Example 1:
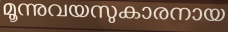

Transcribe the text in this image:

മൂന്നുവയസുകാരനായ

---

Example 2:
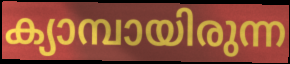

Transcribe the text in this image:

ക്യാമ്പായിരുന്ന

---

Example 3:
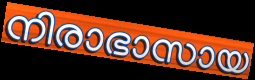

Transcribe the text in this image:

നിരാഭാസായ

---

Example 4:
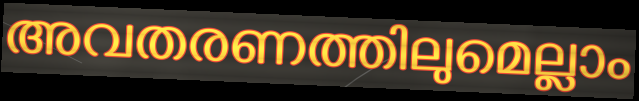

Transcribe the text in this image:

അവതരണത്തിലുമെല്ലാം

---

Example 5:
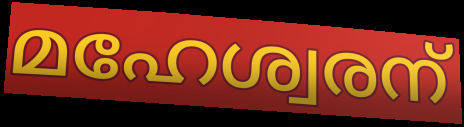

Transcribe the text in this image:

മഹേശ്വരന്